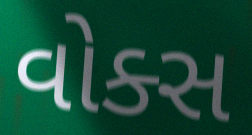
વોક્સ